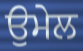
ਉਮੇਲ